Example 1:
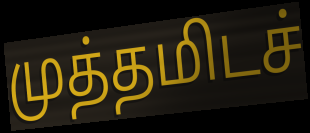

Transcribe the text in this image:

முத்தமிடச்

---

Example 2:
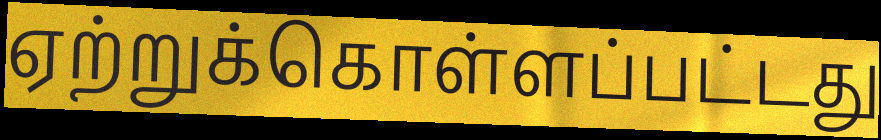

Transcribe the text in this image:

ஏற்றுக்கொள்ளப்பட்டது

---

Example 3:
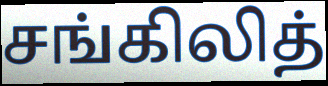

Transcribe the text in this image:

சங்கிலித்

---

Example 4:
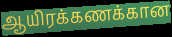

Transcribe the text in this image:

ஆயிரக்கணக்கான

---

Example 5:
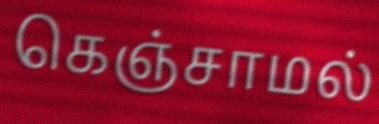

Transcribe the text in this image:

கெஞ்சாமல்